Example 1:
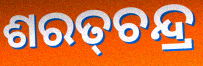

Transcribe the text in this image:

ଶରତ୍‌ଚନ୍ଦ୍ର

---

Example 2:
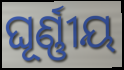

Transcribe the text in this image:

ଘୂର୍ଣ୍ଣୀୟ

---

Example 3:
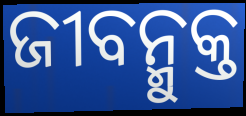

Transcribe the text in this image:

ଜୀବନ୍ମୁକ୍ତ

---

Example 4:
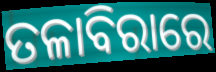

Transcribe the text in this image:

ତଳାବିରାରେ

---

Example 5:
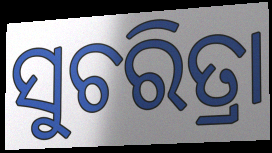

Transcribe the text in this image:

ସୁଚରିତ୍ରା